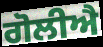
ਗੋਲੀਐ